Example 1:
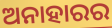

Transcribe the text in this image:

ଅନାହାରର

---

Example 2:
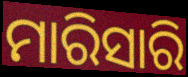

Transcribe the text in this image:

ମାରିସାରି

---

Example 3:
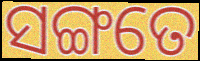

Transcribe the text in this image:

ସଙ୍ଗତେ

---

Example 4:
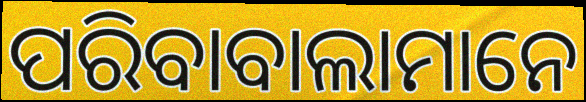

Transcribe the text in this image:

ପରିବାବାଲାମାନେ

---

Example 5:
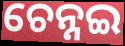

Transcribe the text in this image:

ଚେନ୍ନଇ